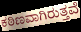
ಕಠಿಣವಾಗಿರುತ್ತವೆ